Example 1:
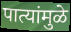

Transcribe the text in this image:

पात्यांमुळे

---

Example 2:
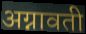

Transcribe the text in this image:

अग्नावती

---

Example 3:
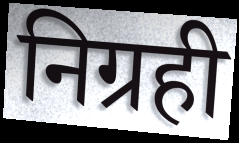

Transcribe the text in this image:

निग्रही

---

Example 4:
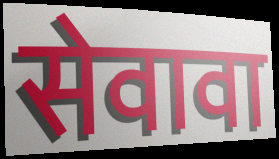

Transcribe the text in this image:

सेवावा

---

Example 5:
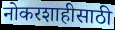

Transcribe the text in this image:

नोकरशाहीसाठी